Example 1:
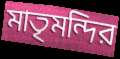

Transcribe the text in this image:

মাতৃমন্দির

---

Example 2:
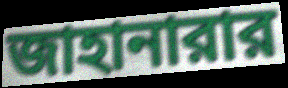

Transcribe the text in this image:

জাহানারার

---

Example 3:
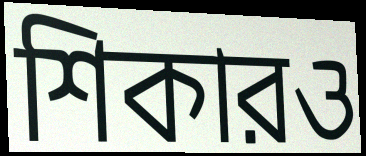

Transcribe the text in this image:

শিকারও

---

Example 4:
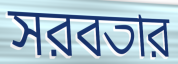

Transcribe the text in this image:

সরবতার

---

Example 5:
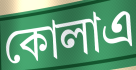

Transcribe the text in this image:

কোলাএ